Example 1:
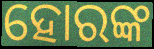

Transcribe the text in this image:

ହୋରଙ୍କ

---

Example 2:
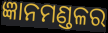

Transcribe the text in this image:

ଜ୍ଞାନମଣ୍ଡଳର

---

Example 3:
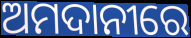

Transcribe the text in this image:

ଅମଦାନୀରେ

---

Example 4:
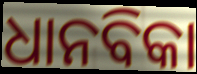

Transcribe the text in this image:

ଧାନବିକା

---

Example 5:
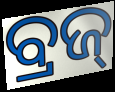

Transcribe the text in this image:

ବ୍ରଜ୍